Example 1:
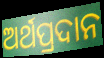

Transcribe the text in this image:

ଅର୍ଥପ୍ରଦାନ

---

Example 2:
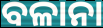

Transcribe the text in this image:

ବଳାନା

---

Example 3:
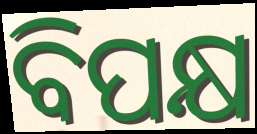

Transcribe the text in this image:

ବିପକ୍ଷ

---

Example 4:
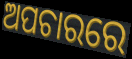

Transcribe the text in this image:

ଅପଚାରରେ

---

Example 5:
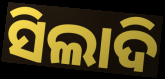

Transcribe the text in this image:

ସିଲାଦି